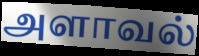
அளாவல்